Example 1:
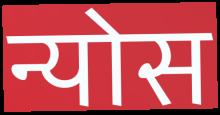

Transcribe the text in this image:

न्योस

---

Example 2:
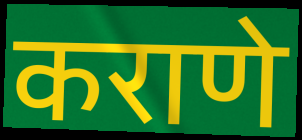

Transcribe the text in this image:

कराणे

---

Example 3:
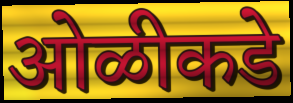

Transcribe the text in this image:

ओळीकडे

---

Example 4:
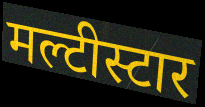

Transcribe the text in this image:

मल्टीस्टार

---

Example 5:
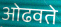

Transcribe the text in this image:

ओढवते